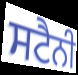
ਸਟੈਨੀ